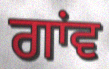
ਗਾਂਵ